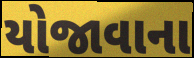
યોજાવાના